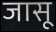
जासू